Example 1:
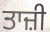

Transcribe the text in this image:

ਤਾਜ਼ੀ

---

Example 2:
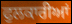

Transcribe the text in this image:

ਫੁਲਕਾਰੀਆਂ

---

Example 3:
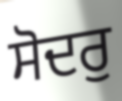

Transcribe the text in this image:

ਸੋਦਰੁ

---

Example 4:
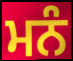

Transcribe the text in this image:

ਮਨੰ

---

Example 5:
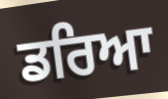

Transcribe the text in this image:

ਡਰਿਆ